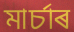
মাৰ্চাৰ